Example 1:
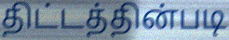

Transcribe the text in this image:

திட்டத்தின்படி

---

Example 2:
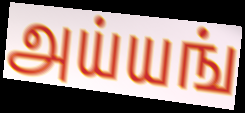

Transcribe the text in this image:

அய்யங்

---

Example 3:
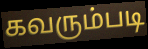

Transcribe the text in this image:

கவரும்படி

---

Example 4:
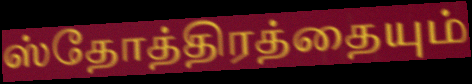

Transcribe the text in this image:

ஸ்தோத்திரத்தையும்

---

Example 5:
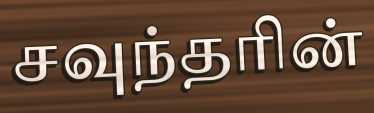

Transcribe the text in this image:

சவுந்தரின்